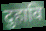
दुहावि